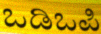
ಒಡಿಒಪಿ